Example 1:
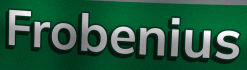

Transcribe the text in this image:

Frobenius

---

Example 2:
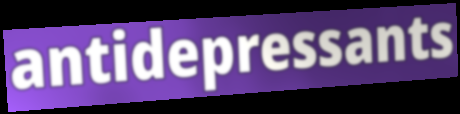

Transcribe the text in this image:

antidepressants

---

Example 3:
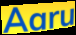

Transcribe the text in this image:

Aaru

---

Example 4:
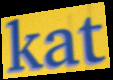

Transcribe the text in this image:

kat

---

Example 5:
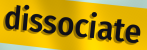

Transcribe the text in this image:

dissociate